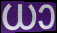
ധാ